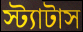
স্ট্যাটাস